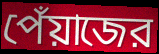
পেঁয়াজের